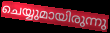
ചെയ്യുമായിരുന്നു